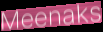
Meenaks